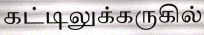
கட்டிலுக்கருகில்